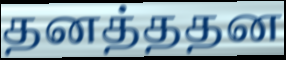
தனத்ததன